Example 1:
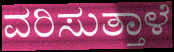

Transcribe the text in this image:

ವರಿಸುತ್ತಾಳೆ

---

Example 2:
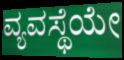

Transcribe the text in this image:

ವ್ಯವಸ್ಥೆಯೇ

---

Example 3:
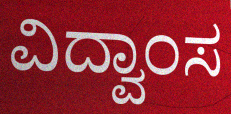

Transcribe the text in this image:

ವಿದ್ವಾಂಸ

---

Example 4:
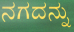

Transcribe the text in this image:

ನಗದನ್ನು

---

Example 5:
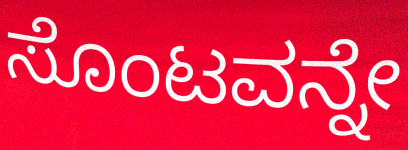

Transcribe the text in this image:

ಸೊಂಟವನ್ನೇ